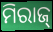
ମିରାଜ୍